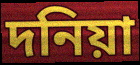
দনিয়া